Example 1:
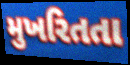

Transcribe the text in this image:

મુખરિતતા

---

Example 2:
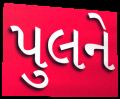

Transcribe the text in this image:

પુલને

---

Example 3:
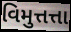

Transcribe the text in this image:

વિમુત્તત્તા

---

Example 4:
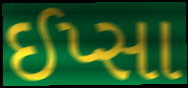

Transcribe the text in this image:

ઈપ્સા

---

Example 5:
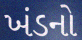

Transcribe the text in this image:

ખંડનો